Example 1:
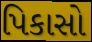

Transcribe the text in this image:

પિકાસો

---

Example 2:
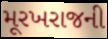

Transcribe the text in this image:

મૂરખરાજની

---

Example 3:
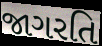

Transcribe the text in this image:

જાગરતિ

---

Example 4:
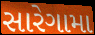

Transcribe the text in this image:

સારેગામા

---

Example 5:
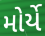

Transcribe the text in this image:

મોર્યે